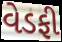
વેડફી